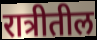
रात्रीतील